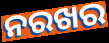
ନରଖର